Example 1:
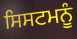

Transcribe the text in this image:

ਸਿਸਟਮਨੂੰ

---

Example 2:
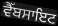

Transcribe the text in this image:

ਵੈੱਬਸਾਇਟ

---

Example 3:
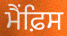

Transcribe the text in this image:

ਮੈਂਫ਼ਿਸ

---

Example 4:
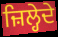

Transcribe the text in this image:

ਜ਼ਿਲ੍ਹੇਦੇ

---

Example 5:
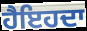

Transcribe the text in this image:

ਹੈਇਹਦਾ